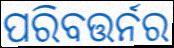
ପରିବତ୍ତର୍ନର